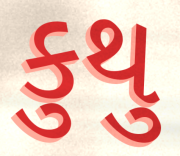
કુથુ